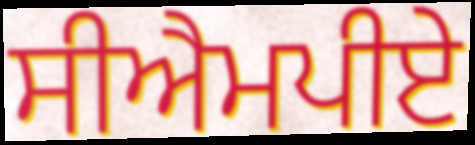
ਸੀਐਮਪੀਏ